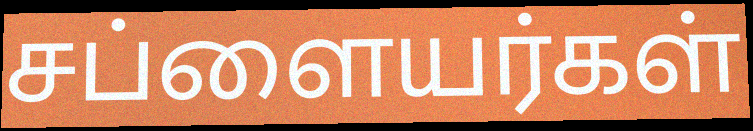
சப்ளையர்கள்